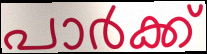
പാർക്ക്